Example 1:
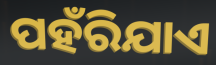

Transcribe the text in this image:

ପହଁରିଯାଏ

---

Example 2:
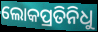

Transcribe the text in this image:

ଲୋକପ୍ରତିନିଧୁ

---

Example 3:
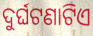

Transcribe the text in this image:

ଦୁର୍ଘଟଣାଟିଏ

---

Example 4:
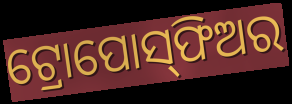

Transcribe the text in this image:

ଟ୍ରୋପୋସ୍‌ଫିଅର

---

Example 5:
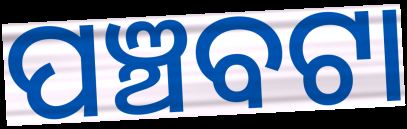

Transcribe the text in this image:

ପଞ୍ଚବଟା